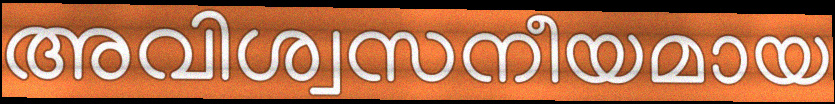
അവിശ്വസനീയമായ